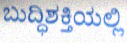
ಬುದ್ಧಿಶಕ್ತಿಯಲ್ಲಿ